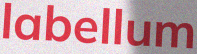
labellum